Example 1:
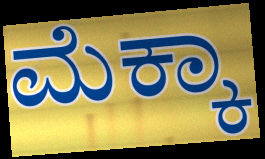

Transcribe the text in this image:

ಮೆಕ್ಕಾ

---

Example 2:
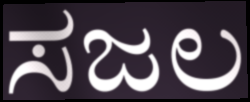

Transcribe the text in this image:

ಸಜಲ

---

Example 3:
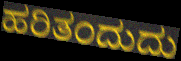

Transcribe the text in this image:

ಹರಿತಂದುದು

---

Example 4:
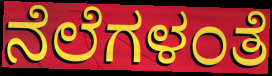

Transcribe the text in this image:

ನೆಲೆಗಳಂತೆ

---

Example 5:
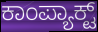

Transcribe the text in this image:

ಕಾಂಪ್ಯಾಕ್ಟ್